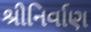
શ્રીનિર્વાણ